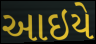
આઇયે